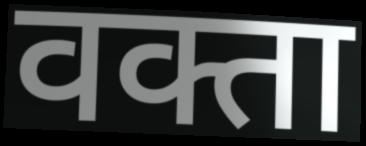
वक्ता